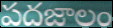
పదజాలం